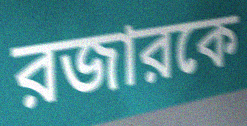
রজারকে